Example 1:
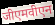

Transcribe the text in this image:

जीएमवीएन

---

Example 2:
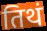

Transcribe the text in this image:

तिथं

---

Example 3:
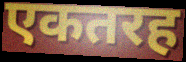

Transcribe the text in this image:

एकतरह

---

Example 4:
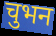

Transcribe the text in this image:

चुभन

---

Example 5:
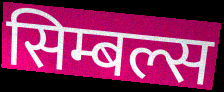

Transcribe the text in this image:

सिम्बल्स